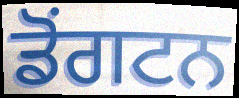
ਡੋਂਗਟਨ